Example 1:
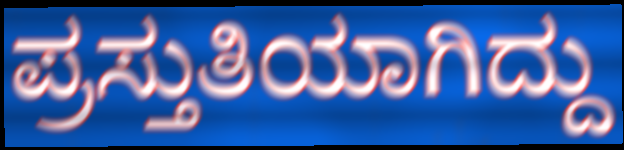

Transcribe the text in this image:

ಪ್ರಸ್ತುತಿಯಾಗಿದ್ದು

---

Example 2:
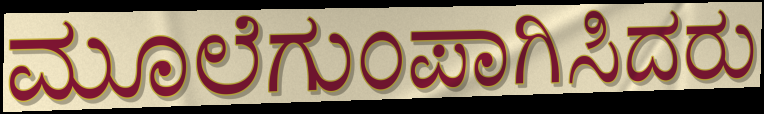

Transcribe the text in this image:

ಮೂಲೆಗುಂಪಾಗಿಸಿದರು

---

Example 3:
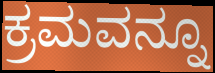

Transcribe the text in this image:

ಕ್ರಮವನ್ನೂ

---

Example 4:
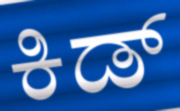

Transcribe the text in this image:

ಕಿಡ್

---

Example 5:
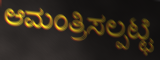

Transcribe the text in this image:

ಆಮಂತ್ರಿಸಲ್ಪಟ್ಟೆ